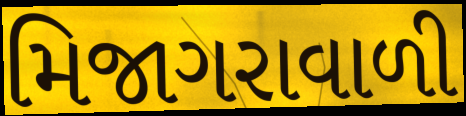
મિજાગરાવાળી